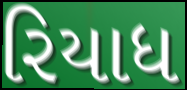
રિયાધ